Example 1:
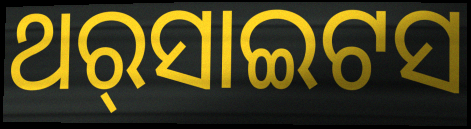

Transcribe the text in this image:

ଥର୍‌ସାଇଟସ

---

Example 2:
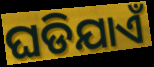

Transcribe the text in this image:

ଘଡିଯାଏଁ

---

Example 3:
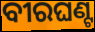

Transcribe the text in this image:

ବୀରଘଣ୍ଟ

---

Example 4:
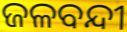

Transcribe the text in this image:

ଜଳବନ୍ଦୀ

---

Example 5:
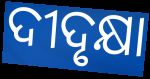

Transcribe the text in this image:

ଦୀଦୃକ୍ଷା